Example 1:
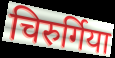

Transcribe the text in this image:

चिरुर्गिया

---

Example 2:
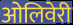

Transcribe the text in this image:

ओलिवेरी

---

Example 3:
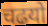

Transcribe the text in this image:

चढयो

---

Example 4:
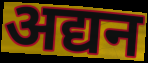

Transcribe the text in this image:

अद्यन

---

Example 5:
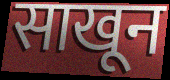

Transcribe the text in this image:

साखून